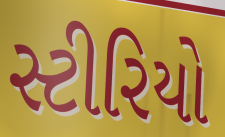
સ્ટીરિયો